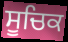
ਸੂਚਿਕ